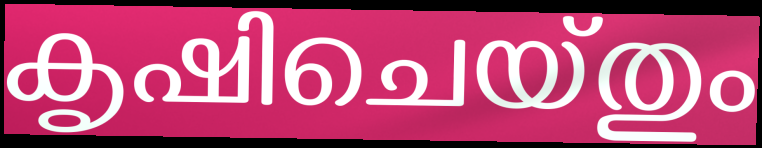
കൃഷിചെയ്തും